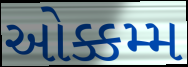
ઓક્કમ્મ